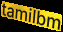
tamilbm